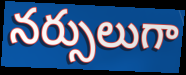
నర్సులుగా